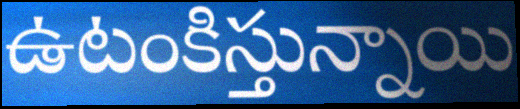
ఉటంకిస్తున్నాయి